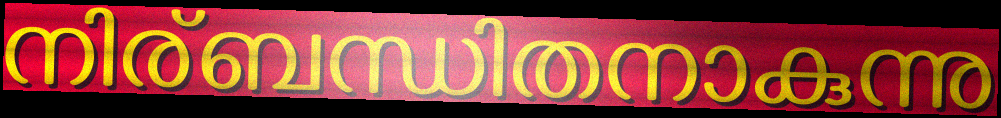
നിര്ബന്ധിതനാകുന്നു